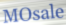
MOsale